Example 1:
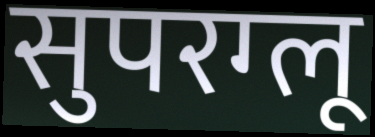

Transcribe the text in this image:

सुपरग्लू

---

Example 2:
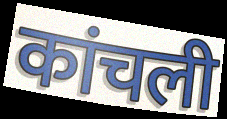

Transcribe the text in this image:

कांचली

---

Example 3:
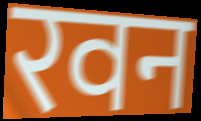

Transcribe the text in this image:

रवन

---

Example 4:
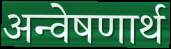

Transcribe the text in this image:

अन्वेषणार्थ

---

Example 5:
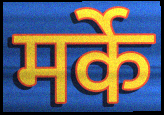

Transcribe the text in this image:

मर्के